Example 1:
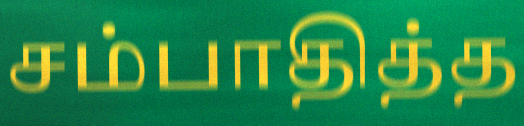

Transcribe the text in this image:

சம்பாதித்த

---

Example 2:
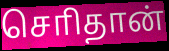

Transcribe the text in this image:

செரிதான்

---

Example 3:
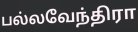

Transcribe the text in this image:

பல்லவேந்திரா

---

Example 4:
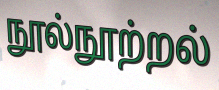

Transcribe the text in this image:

நூல்நூற்றல்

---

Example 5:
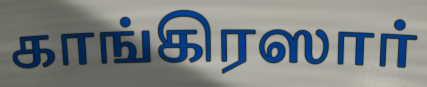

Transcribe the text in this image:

காங்கிரஸார்